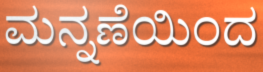
ಮನ್ನಣೆಯಿಂದ